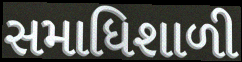
સમાધિશાળી